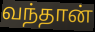
வந்தான்